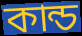
কান্ড